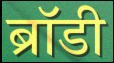
ब्रॉडी